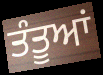
ਤੰਤੂਆਂ